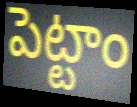
పెట్టాం